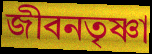
জীবনতৃষ্ণা